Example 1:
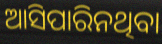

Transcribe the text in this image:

ଆସିପାରିନଥିବା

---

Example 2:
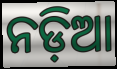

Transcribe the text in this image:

ନଡ଼ିଆ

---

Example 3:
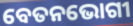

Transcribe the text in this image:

ବେତନଭୋଗୀ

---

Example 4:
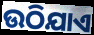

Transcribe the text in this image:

ଉଠିଯାଏ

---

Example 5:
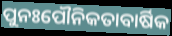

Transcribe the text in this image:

ପୁନଃପୌନିକତାବାର୍ଷିକ